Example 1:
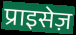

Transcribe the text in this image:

प्राइसेज़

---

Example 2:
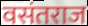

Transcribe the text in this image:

वसंतराज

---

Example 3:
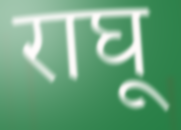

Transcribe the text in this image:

राघू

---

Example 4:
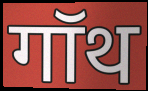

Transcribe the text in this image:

गॉथ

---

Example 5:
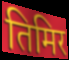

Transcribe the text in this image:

तिमिर